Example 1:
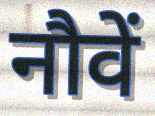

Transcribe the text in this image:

नौवें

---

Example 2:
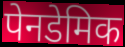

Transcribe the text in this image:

पेनडेमिक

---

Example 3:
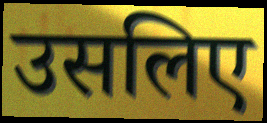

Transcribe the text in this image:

उसलिए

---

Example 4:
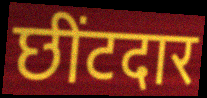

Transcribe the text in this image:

छींटदार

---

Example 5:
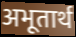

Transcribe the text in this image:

अभूतार्थ